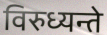
विरुध्यन्ते